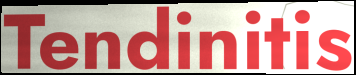
Tendinitis